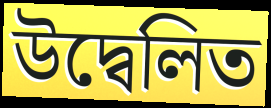
উদ্বেলিত